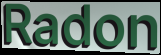
Radon